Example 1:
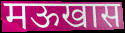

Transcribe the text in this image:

मऊखास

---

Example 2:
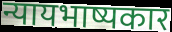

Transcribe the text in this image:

न्यायभाष्यकार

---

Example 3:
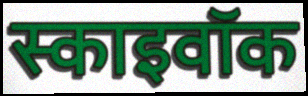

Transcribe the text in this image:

स्काइवॉक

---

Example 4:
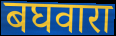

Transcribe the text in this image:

बघवारा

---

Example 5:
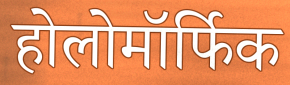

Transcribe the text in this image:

होलोमॉर्फिक